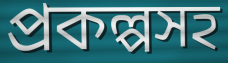
প্রকল্পসহ